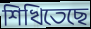
শিখিতেছে